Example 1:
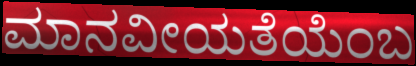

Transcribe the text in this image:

ಮಾನವೀಯತೆಯೆಂಬ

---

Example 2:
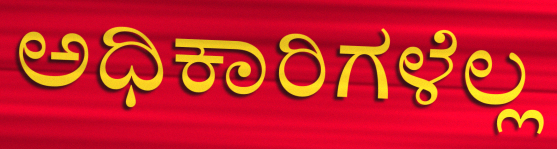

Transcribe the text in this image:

ಅಧಿಕಾರಿಗಳೆಲ್ಲ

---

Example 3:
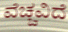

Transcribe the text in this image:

ವೆಚ್ಚವಿದೆ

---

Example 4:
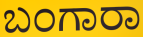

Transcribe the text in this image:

ಬಂಗಾರಾ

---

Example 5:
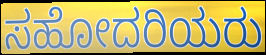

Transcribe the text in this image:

ಸಹೋದರಿಯರು